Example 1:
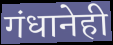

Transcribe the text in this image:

गंधानेही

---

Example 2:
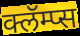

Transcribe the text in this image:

क्लॅम्प्स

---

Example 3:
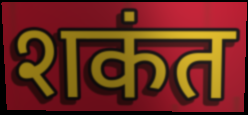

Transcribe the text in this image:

शकंत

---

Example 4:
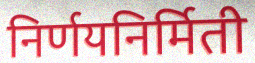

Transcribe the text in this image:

निर्णयनिर्मिती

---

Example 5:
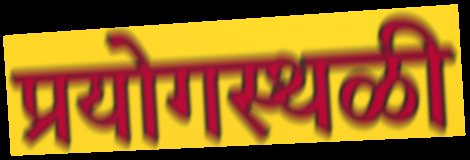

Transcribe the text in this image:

प्रयोगस्थळी